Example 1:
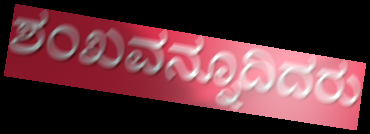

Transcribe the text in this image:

ಶಂಖವನ್ನೂದಿದರು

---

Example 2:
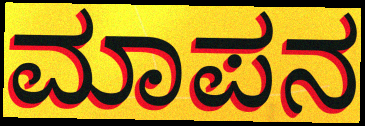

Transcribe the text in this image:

ಮಾಪನ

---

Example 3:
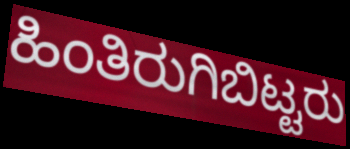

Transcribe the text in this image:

ಹಿಂತಿರುಗಿಬಿಟ್ಟರು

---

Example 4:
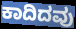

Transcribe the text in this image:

ಕಾದಿದವು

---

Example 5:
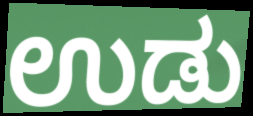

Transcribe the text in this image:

ಉಡು